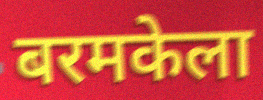
बरमकेला